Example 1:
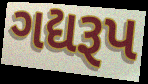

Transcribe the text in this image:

ગદ્યરૂપ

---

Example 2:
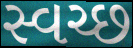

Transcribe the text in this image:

સ્વચ્છ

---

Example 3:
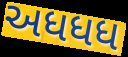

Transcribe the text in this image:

અધધધ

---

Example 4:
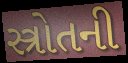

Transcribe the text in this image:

સ્ત્રોતની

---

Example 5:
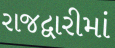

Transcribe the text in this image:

રાજદ્વારીમાં